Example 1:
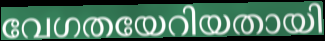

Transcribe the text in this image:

വേഗതയേറിയതായി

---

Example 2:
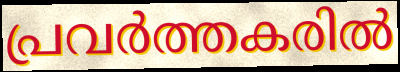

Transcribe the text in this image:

പ്രവർത്തകരിൽ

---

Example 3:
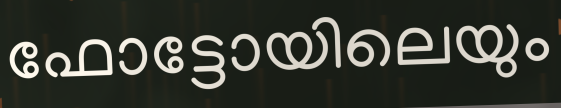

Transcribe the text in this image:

ഫോട്ടോയിലെയും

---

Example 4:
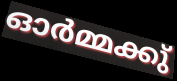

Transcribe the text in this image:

ഓർമ്മക്കു്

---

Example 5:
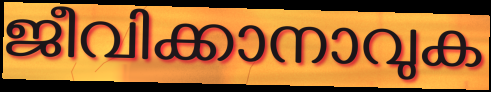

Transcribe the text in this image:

ജീവിക്കാനാവുക